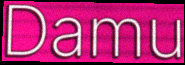
Damu